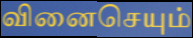
வினைசெயும்